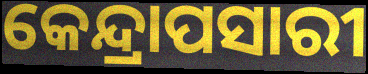
କେନ୍ଦ୍ରାପସାରୀ